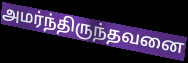
அமர்ந்திருந்தவனை